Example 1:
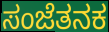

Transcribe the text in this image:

ಸಂಜೆತನಕ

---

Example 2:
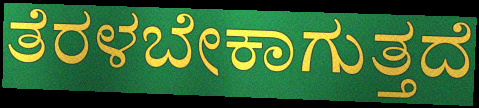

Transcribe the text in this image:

ತೆರಳಬೇಕಾಗುತ್ತದೆ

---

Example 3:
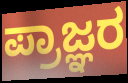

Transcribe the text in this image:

ಪ್ರಾಜ್ಞರ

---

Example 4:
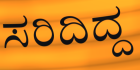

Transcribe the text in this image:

ಸರಿದಿದ್ದ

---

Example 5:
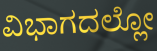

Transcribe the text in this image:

ವಿಭಾಗದಲ್ಲೋ